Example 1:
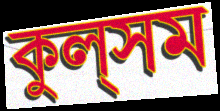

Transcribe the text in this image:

কুল্‌সম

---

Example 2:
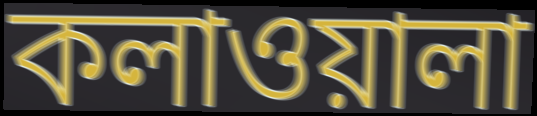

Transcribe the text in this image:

কলাওয়ালা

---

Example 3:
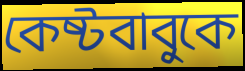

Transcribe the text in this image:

কেষ্টবাবুকে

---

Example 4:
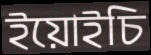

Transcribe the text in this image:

ইয়োইচি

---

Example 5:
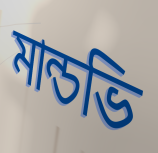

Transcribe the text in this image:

মান্ডভি